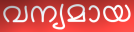
വന്യമായ